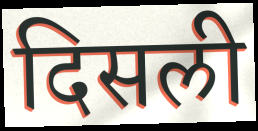
दिसली